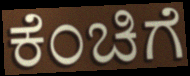
ಕೆಂಚಿಗೆ